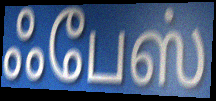
ஃபேஸ்